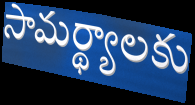
సామర్థ్యాలకు